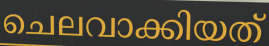
ചെലവാക്കിയത്